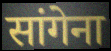
सांगेना